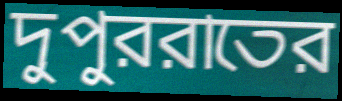
দুপুররাতের